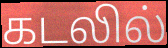
கடலில்